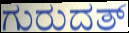
ಗುರುದತ್